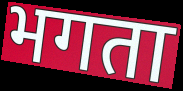
भगता